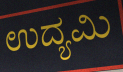
ಉದ್ಯಮಿ